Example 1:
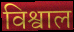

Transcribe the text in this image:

विश्वाल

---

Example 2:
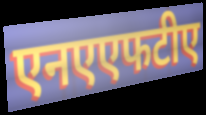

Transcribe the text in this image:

एनएएफटीए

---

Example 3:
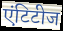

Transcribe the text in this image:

एंटिटीज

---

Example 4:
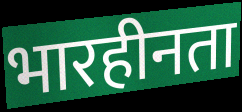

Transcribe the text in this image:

भारहीनता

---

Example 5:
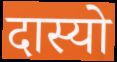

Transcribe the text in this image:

दास्यो